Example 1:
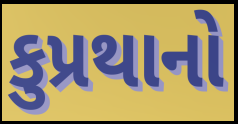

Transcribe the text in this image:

કુપ્રથાનો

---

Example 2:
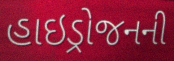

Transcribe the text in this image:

હાઇડ્રોજનની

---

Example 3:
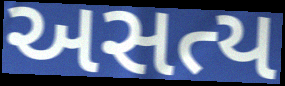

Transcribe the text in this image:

અસત્ય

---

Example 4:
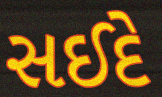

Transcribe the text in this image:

સઈદે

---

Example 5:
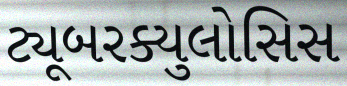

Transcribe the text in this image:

ટ્યૂબરક્યુલોસિસ